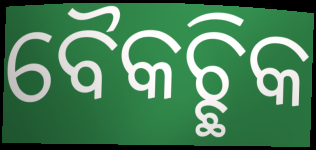
ବୈକଚ୍ଛିକ